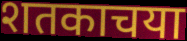
शतकाचया